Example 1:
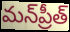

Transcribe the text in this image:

మన్‌ప్రీత్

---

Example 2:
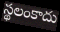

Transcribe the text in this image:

స్థలంకాదు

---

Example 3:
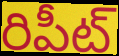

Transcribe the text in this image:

రిపీట్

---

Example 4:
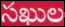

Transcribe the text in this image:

సఖుల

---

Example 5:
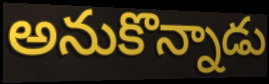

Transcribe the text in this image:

అనుకొన్నాడు